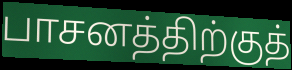
பாசனத்திற்குத்